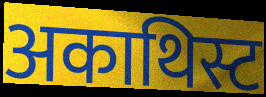
अकाथिस्ट